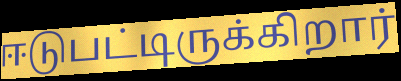
ஈடுபட்டிருக்கிறார்